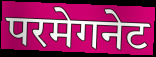
परमेगनेट